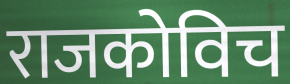
राजकोविच